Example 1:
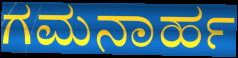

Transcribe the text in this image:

ಗಮನಾರ್ಹ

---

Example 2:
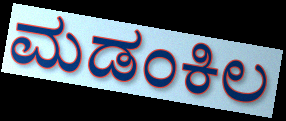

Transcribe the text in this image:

ಮಡಂಕಿಲ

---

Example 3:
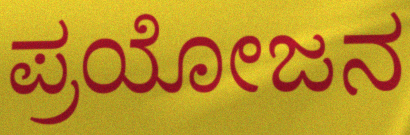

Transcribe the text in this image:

ಪ್ರಯೋಜನ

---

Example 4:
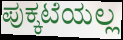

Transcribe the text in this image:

ಪುಕ್ಕಟೆಯಲ್ಲ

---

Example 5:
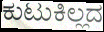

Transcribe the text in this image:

ಕುಟುಕಿಲ್ಲದ